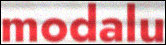
modalu